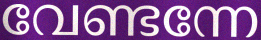
വേണ്ടന്നേ